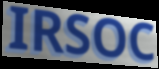
IRSOC